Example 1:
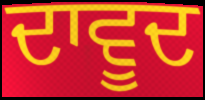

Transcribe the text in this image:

ਦਾਵੂਦ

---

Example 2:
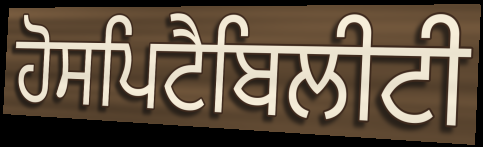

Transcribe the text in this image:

ਹੋਸਪਿਟੈਬਿਲੀਟੀ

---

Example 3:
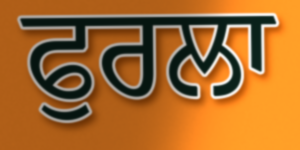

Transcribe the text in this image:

ਫੁਰਲਾ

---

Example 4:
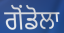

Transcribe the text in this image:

ਗੋਂਡੋਲਾ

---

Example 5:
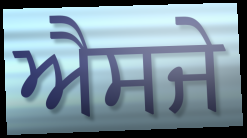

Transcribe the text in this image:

ਐਸਜੇ